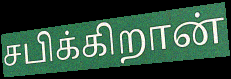
சபிக்கிறான்